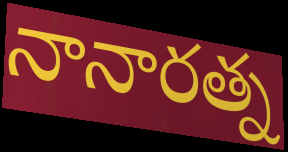
నానారత్న